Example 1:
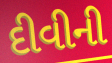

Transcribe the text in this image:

દીવીની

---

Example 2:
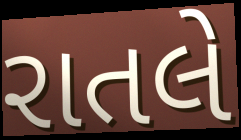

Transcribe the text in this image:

રાતલે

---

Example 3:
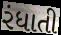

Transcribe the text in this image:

રંધાતી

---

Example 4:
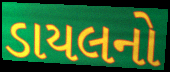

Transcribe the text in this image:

ડાયલનો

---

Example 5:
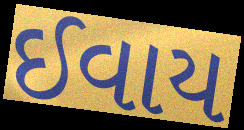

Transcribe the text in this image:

ઈવાય